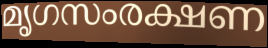
മൃഗസംരക്ഷണ